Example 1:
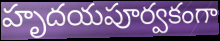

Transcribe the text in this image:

హృదయపూర్వకంగా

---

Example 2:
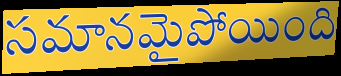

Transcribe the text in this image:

సమానమైపోయింది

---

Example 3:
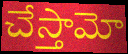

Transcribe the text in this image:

చేస్తామో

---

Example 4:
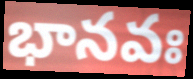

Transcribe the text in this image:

భానవః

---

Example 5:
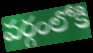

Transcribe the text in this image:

వర్గంలోకి